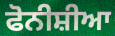
ਫੋਨੀਸ਼ੀਆ